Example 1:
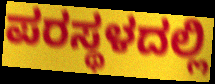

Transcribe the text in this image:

ಪರಸ್ಥಳದಲ್ಲಿ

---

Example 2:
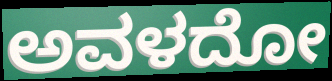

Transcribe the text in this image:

ಅವಳದೋ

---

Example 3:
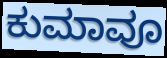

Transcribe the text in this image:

ಕುಮಾವೂ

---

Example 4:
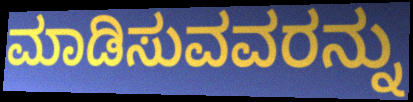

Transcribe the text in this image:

ಮಾಡಿಸುವವರನ್ನು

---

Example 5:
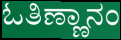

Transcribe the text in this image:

ಓತಿಣ್ಣಾನಂ